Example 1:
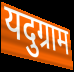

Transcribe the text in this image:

यदुग्राम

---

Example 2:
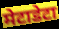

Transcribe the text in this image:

मेटाडेटा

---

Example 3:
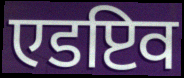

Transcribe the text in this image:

एडप्टिव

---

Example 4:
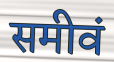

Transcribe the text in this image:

समीवं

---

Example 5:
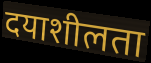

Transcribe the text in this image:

दयाशीलता